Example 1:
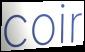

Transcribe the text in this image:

coir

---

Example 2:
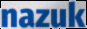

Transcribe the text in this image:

nazuk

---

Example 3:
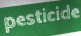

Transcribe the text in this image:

pesticide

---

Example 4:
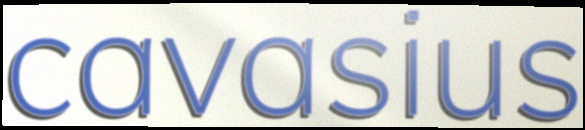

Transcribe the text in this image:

cavasius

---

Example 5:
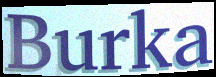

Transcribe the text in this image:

Burka